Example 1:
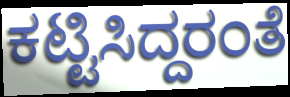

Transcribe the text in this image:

ಕಟ್ಟಿಸಿದ್ದರಂತೆ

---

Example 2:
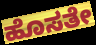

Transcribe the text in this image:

ಹೊಸತೇ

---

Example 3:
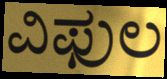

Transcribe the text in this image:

ವಿಫುಲ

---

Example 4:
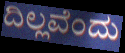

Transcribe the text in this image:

ದಿಲ್ಲವೆಂದು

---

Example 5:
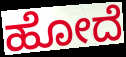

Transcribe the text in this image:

ಹೋದೆ